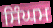
ਸਿੰਘਮ